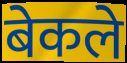
बेकले